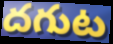
దగుట